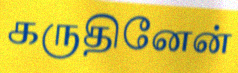
கருதினேன்